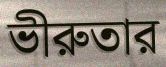
ভীরুতার